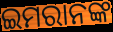
ଇମରାନଙ୍କ